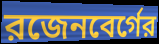
রজেনবের্গের